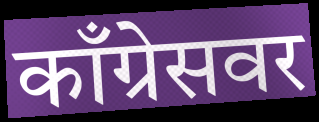
काँग्रेसवर